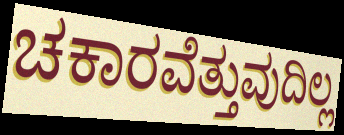
ಚಕಾರವೆತ್ತುವುದಿಲ್ಲ